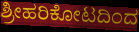
ಶ್ರೀಹರಿಕೋಟದಿಂದ